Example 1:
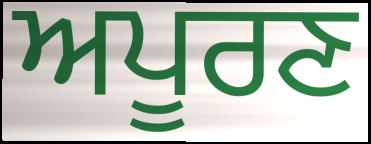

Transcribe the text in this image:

ਅਪੂਰਣ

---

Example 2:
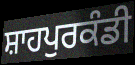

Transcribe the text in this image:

ਸ਼ਾਹਪੁਰਕੰਡੀ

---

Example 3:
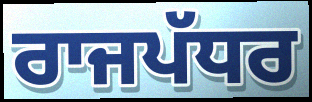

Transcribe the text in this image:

ਰਾਜਪੱਧਰ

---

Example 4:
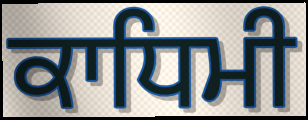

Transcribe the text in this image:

ਕਾਧਿਮੀ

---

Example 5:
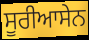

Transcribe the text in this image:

ਸੂਰੀਆਸੇਨ